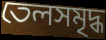
তেলসমৃদ্ধ